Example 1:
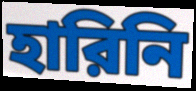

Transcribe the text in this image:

হারিনি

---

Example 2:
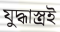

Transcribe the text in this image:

যুদ্ধাস্ত্রই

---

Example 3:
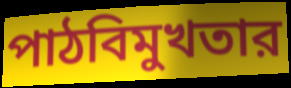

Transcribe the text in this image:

পাঠবিমুখতার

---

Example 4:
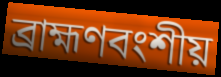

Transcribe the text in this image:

ব্রাহ্মণবংশীয়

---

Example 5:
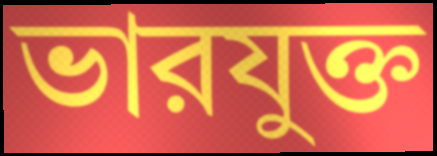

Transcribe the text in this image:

ভারযুক্ত